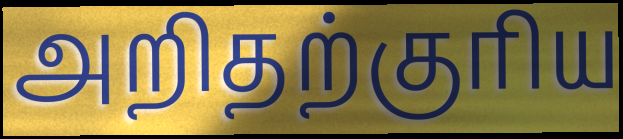
அறிதற்குரிய